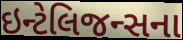
ઇન્ટેલિજન્સના